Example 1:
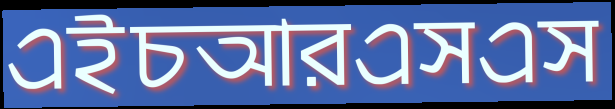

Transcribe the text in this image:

এইচআরএসএস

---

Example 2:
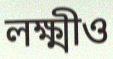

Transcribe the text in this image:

লক্ষ্মীও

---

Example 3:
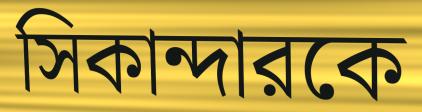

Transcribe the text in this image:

সিকান্দারকে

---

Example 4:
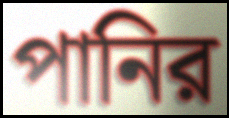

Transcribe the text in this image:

পানির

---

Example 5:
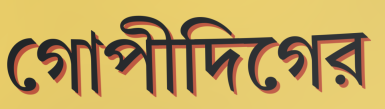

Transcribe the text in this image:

গোপীদিগের